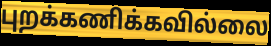
புறக்கணிக்கவில்லை